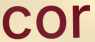
cor